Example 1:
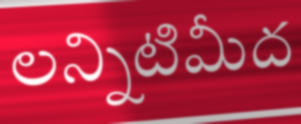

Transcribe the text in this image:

లన్నిటిమీద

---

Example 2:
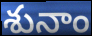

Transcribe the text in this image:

శునాం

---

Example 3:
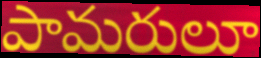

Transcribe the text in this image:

పామరులూ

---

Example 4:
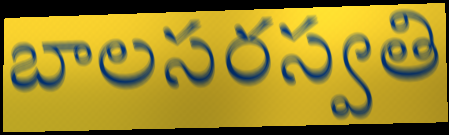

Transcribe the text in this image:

బాలసరస్వతి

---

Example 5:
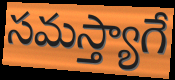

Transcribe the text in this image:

సమస్త్యాగే